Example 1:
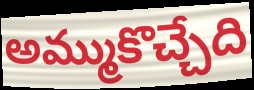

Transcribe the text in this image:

అమ్ముకొచ్చేది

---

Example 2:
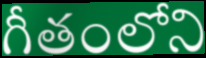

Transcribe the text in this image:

గీతంలోని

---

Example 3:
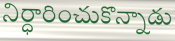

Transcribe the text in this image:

నిర్ధారించుకొన్నాడు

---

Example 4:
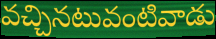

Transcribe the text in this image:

వచ్చినటువంటివాడు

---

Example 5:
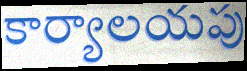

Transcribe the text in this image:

కార్యాలయపు